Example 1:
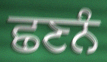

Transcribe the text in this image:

ਛਣਨੰ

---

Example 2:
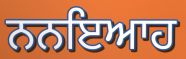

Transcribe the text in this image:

ਨਨਇਆਹ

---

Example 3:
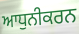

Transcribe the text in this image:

ਆਧੁਨੀਕਰਨ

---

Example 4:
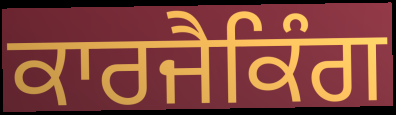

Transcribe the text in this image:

ਕਾਰਜੈਕਿੰਗ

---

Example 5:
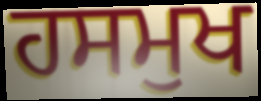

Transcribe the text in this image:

ਹਸਮੁਖ